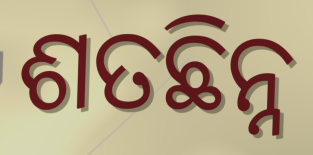
ଶତଛିନ୍ନ